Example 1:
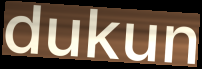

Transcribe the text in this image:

dukun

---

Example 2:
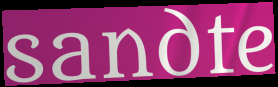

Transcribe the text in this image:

sandte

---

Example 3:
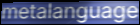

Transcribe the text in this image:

metalanguage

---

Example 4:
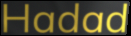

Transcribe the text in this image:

Hadad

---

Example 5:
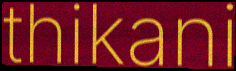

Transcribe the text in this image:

thikani